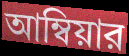
আম্বিয়ার